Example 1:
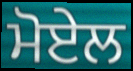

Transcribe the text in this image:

ਮੋਏਲ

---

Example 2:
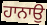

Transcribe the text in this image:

ਹਾਨਾਉ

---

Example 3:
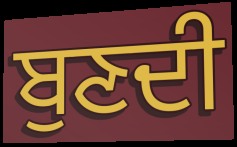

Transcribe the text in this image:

ਬੁਣਦੀ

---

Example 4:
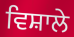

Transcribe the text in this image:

ਵਿਸ਼ਾਲੇ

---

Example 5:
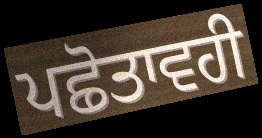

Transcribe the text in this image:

ਪਛੋਤਾਵਹੀ